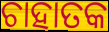
ଚାହାତକ